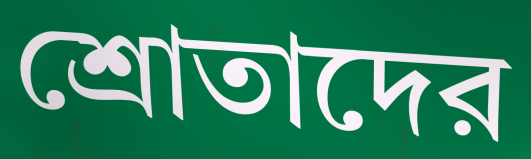
শ্রোতাদের